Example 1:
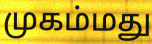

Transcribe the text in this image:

முகம்மது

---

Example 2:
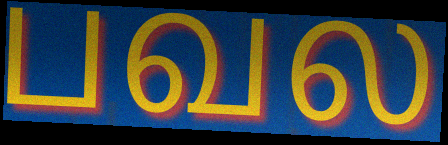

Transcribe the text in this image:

பவல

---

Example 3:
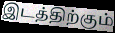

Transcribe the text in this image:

இடத்திற்கும்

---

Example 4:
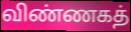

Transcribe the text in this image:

விண்ணகத்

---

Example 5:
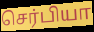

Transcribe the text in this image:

செர்பியா